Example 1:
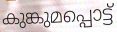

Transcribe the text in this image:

കുങ്കുമപ്പൊട്ട്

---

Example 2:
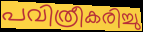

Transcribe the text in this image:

പവിത്രീകരിച്ചു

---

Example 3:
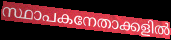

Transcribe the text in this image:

സ്ഥാപകനേതാക്കളിൽ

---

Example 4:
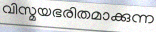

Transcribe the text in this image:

വിസ്മയഭരിതമാക്കുന്ന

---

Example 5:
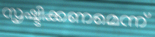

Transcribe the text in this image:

സൃഷ്ടിക്കണമെന്ന്